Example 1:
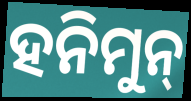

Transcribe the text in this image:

ହନିମୁନ୍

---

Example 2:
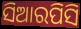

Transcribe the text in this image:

ସିଆରପିସି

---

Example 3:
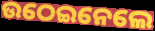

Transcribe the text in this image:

ଉଠେଇନେଲେ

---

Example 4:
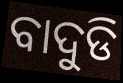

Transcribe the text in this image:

ବାଦୁଡି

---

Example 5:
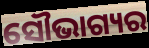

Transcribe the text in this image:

ସୌଭାଗ୍ୟର